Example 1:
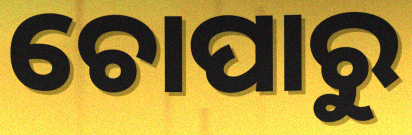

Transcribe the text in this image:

ଚୋପାରୁ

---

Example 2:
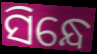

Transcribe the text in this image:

ସିନ୍ଧେ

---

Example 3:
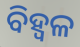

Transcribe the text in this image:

ବିହ୍ଵଳ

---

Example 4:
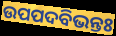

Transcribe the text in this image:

ଉପପଦବିଭନ୍ତଃ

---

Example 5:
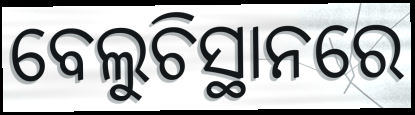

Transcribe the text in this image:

ବେଲୁଚିସ୍ଥାନରେ